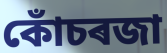
কোঁচৰজা